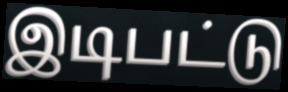
இடிபட்டு